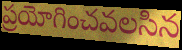
ప్రయోగించవలసిన